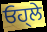
ਓਹ੍ਲੇ